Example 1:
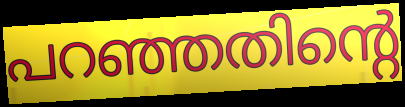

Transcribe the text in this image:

പറഞ്ഞതിന്റെ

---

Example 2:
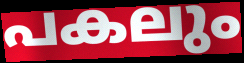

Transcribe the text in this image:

പകലും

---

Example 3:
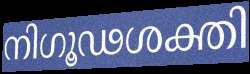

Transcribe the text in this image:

നിഗൂഢശക്തി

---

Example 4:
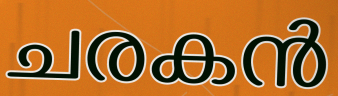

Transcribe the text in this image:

ചരകൻ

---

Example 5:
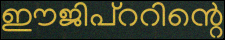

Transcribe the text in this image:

ഈജിപ്ററിന്റെ